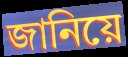
জানিয়ে